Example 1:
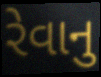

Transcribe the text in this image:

રેવાનુ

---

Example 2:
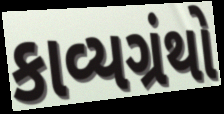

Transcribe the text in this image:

કાવ્યગ્રંથો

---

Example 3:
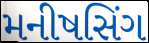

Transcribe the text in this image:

મનીષસિંગ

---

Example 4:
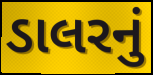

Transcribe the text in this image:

ડાલરનું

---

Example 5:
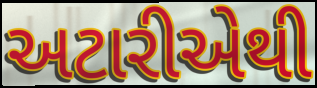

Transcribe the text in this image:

અટારીએથી